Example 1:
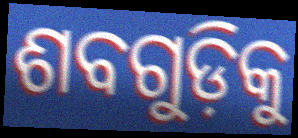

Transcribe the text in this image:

ଶବଗୁଡ଼ିକୁ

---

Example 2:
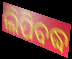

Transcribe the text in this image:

ଲିପିବଦ୍ଧ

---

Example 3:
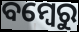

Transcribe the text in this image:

ବମ୍ବେରୁ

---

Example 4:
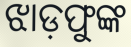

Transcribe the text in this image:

ଝାଡ଼ଫୁଙ୍କ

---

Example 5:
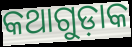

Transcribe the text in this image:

କଥାଗୁଡ଼ାକ